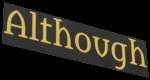
Although